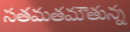
సతమతమౌతున్న